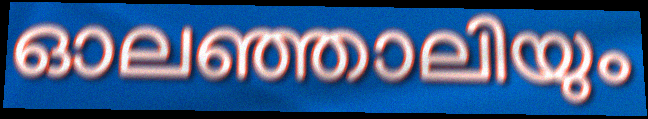
ഓലഞ്ഞാലിയും